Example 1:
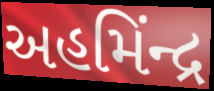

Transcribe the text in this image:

અહમિંન્દ્ર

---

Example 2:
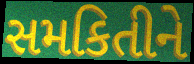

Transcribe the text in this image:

સમકિતીને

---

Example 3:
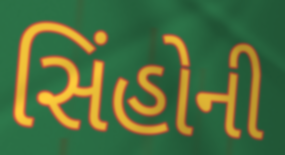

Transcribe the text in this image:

સિંહોની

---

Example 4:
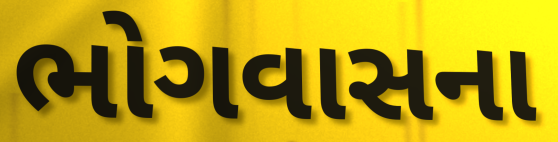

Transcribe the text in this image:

ભોગવાસના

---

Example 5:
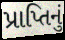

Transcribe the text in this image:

પ્રાપ્‍તિનું